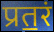
प्रत॒रं